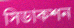
সিডাকশন